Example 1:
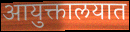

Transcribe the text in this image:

आयुक्तालयात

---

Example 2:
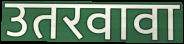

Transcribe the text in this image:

उतरवावा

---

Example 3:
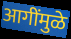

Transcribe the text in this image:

आगींमुळे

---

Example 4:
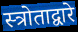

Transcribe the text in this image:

स्त्रोताद्वारे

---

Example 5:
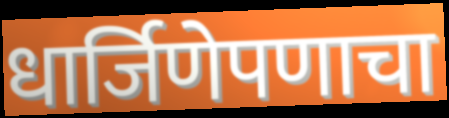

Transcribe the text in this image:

धार्जिणेपणाचा